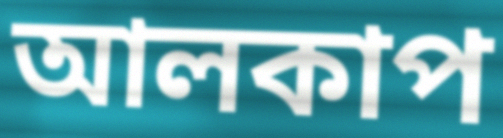
আলকাপ